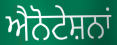
ਐਨੋਟੇਸ਼ਨਾਂ